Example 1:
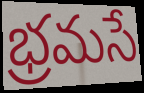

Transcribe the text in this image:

భ్రమసే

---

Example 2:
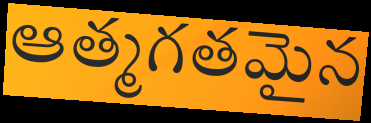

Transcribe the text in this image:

ఆత్మగతమైన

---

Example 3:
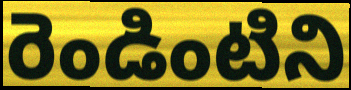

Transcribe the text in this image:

రెండింటిని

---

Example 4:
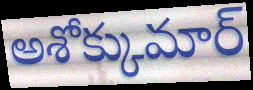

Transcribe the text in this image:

అశోక్కుమార్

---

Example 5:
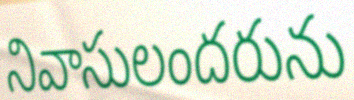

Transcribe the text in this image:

నివాసులందరును